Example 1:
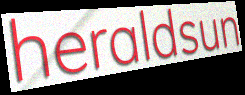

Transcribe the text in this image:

heraldsun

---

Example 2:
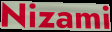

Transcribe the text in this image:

Nizami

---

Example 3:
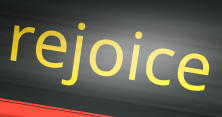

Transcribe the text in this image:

rejoice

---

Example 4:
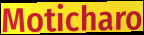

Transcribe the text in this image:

Moticharo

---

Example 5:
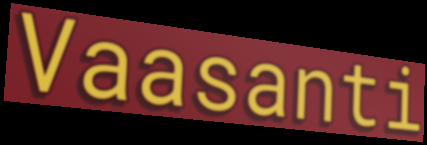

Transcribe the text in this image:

Vaasanti